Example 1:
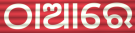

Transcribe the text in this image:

ଠାଆରେ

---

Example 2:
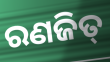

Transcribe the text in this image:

ରଣଜିତ୍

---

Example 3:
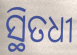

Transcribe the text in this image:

ସ୍ଥିତଧୀ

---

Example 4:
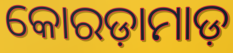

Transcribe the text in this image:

କୋରଡ଼ାମାଡ଼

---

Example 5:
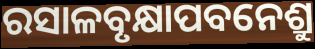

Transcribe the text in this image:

ରସାଳବୃକ୍ଷାପବନେଶ୍ରୁ